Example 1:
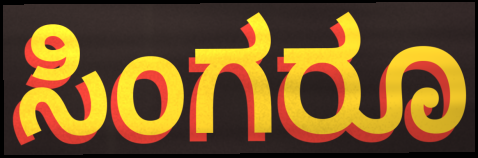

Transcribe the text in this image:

ಸಿಂಗರೂ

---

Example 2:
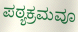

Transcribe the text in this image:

ಪಠ್ಯಕ್ರಮವೂ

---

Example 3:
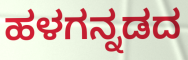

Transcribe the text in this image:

ಹಳಗನ್ನಡದ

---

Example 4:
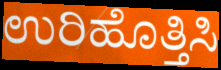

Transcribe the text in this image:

ಉರಿಹೊತ್ತಿಸಿ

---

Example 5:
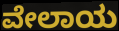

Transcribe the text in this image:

ವೇಲಾಯ